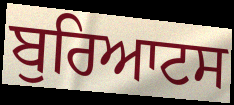
ਬੁਰਿਆਟਸ